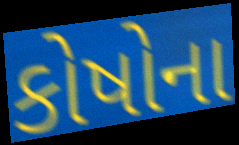
કોષોના